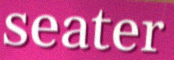
seater